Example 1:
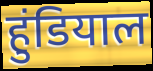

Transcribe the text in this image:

हुंडियाल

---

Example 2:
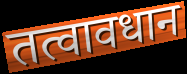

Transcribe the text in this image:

तत्वावधान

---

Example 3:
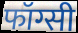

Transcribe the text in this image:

फॉग्सी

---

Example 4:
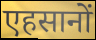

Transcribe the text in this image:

एहसानों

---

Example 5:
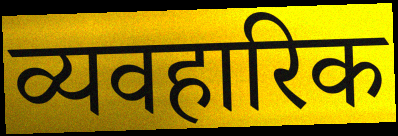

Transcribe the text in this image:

व्यवहारिक